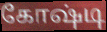
கோஷ்டி